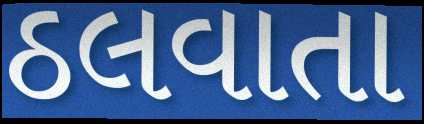
ઠલવાતા